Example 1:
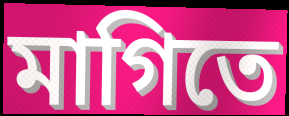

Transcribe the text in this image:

মাগিতে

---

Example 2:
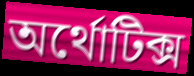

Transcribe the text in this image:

অর্থোটিক্স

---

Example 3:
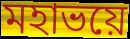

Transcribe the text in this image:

মহাভয়ে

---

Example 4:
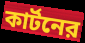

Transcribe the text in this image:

কার্টনের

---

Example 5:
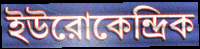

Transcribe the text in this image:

ইউরোকেন্দ্রিক